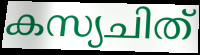
കസ്യചിത്